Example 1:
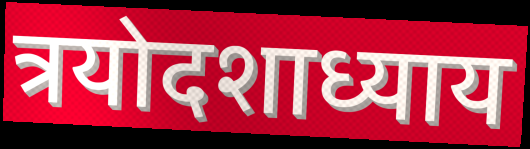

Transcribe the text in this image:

त्रयोदशाध्याय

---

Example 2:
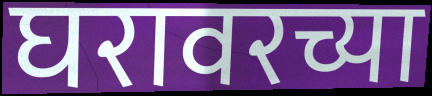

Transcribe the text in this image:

घरावरच्या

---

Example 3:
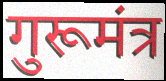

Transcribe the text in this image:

गुरूमंत्र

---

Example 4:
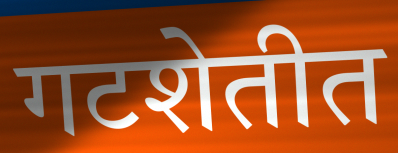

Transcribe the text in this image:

गटशेतीत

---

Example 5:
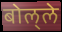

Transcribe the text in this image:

बोल्ले